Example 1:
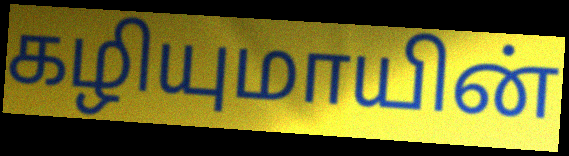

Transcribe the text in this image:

கழியுமாயின்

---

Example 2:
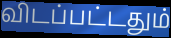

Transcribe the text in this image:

விடப்பட்டதும்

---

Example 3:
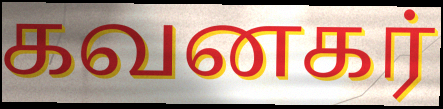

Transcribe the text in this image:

கவனகர்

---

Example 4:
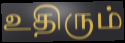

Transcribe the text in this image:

உதிரும்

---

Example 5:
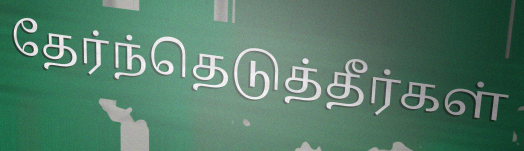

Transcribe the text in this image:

தேர்ந்தெடுத்தீர்கள்